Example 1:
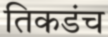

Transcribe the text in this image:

तिकडंच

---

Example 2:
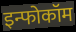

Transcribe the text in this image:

इन्फोकॉम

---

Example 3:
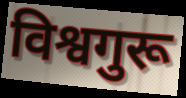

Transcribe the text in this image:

विश्वगुरू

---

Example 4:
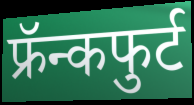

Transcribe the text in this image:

फ्रॅन्कफुर्ट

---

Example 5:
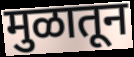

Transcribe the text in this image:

मुळातून